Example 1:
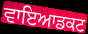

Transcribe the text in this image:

ਵਾਇਆਡਕਟ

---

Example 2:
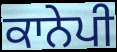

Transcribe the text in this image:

ਕਾਨੇਪੀ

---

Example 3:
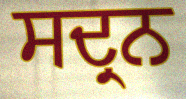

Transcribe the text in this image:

ਸਦ੍ਰਨ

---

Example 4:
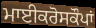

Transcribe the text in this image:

ਮਾਈਕਰੋਸਕੌਪਾਂ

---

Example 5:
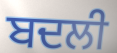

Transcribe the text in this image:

ਬਦਲੀ